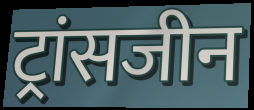
ट्रांसजीन